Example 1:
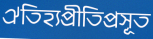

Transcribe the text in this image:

ঐতিহ্যপ্রীতিপ্রসূত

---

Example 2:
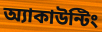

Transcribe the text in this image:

অ্যাকাউন্টিং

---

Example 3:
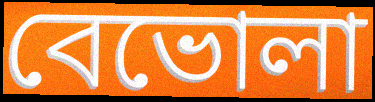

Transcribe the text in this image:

বেভোলা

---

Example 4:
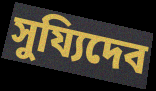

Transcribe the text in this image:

সুয্যিদেব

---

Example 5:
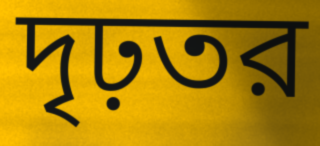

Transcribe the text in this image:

দৃঢ়তর